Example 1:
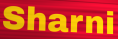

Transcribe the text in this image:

Sharni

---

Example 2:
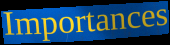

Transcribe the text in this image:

Importances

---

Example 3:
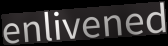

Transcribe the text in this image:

enlivened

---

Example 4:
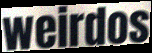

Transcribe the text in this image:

weirdos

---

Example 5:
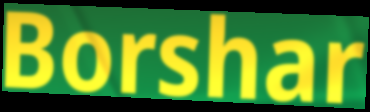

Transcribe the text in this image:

Borshar